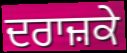
ਦਰਾਜ਼ਕੇ